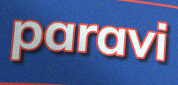
paravi